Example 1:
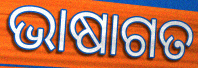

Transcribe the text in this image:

ଭାଷାଗତ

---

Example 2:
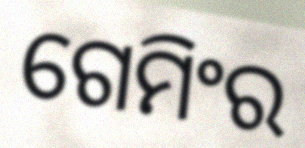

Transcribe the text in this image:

ଗେମିଂର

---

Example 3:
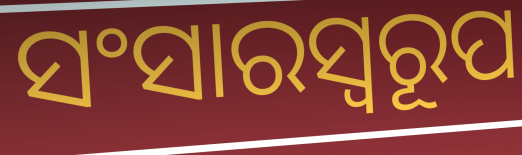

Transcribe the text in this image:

ସଂସାରସ୍ବରୂପ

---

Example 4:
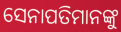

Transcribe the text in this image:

ସେନାପତିମାନଙ୍କୁ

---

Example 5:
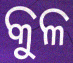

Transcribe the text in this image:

କୁଳ